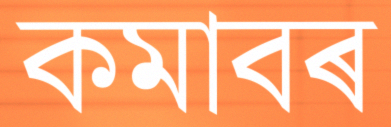
কমাবৰ